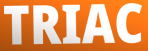
TRIAC